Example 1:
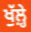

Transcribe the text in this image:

ਖੁੱਲ਼੍ਹੇ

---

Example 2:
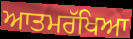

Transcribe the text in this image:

ਆਤਮਰੱਖਿਆ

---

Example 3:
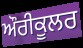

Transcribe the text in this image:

ਔਰੀਕੂਲਰ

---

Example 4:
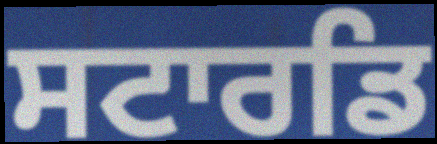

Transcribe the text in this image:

ਸਟਾਰਡਿ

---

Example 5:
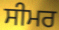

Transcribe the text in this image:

ਸੀਮਰ